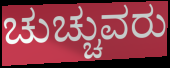
ಚುಚ್ಚುವರು